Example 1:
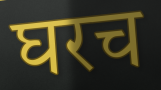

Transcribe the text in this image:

घरच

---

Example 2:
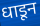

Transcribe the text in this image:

धाडून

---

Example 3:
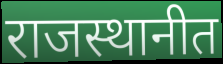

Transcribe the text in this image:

राजस्थानीत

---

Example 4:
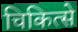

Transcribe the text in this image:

चिकित्से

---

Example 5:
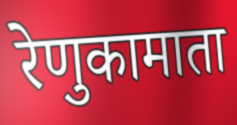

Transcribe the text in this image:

रेणुकामाता